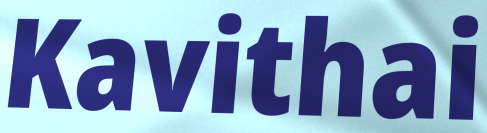
Kavithai